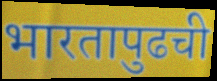
भारतापुढची